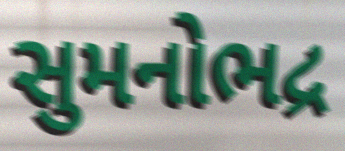
સુમનોભદ્ર